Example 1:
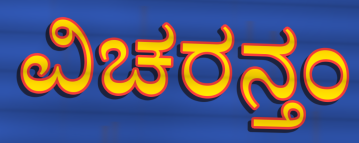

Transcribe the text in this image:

ವಿಚರನ್ತಂ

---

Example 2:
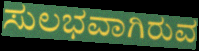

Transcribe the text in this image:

ಸುಲಭವಾಗಿರುವ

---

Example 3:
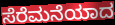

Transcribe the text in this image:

ಸೆರೆಮನೆಯಾದ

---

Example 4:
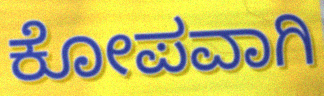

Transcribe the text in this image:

ಕೋಪವಾಗಿ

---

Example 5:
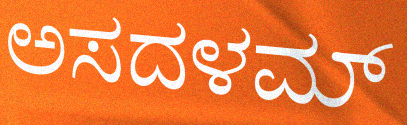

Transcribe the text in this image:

ಅಸದಳಮ್